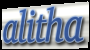
alitha